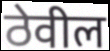
ठेवील